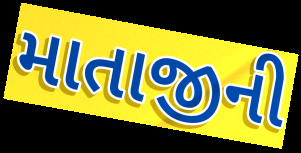
માતાજીની